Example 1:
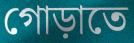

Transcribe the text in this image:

গোড়াতে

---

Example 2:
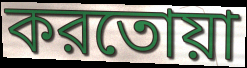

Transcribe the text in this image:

করতোয়া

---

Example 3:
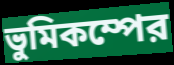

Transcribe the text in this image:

ভুমিকম্পের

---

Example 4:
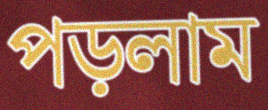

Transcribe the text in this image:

পড়লাম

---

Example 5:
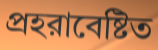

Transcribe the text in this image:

প্রহরাবেষ্টিত